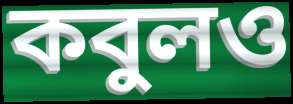
কবুলও